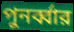
পুনর্ব্বার